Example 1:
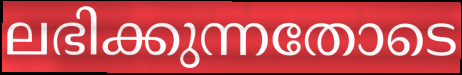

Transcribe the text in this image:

ലഭിക്കുന്നതോടെ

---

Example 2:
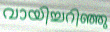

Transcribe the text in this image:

വായിച്ചറിഞ്ഞു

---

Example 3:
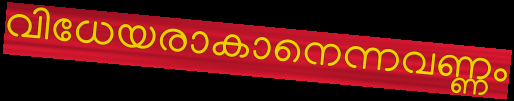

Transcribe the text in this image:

വിധേയരാകാനെന്നവണ്ണം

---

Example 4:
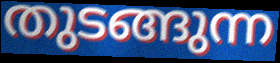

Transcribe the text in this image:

തുടങ്ങുന്ന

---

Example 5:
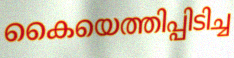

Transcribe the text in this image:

കൈയെത്തിപ്പിടിച്ച